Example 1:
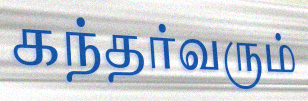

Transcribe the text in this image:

கந்தர்வரும்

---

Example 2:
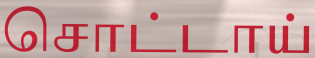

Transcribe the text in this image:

சொட்டாய்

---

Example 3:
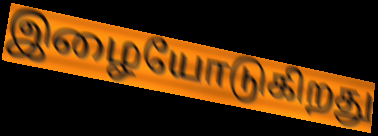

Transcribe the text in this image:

இழையோடுகிறது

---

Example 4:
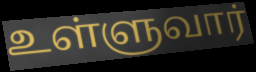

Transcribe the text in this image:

உள்ளுவார்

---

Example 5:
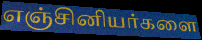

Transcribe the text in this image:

எஞ்சினியர்களை